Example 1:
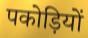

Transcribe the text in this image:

पकोड़ियों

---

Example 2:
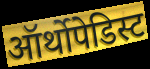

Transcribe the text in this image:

ऑर्थोपेडिस्ट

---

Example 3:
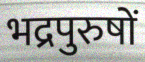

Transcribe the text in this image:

भद्रपुरुषों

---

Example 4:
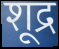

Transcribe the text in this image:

शूद्र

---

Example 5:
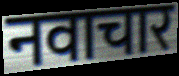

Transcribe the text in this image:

नवाचार